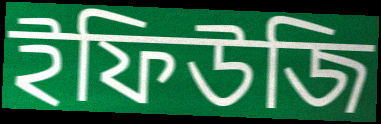
ইফিউজি